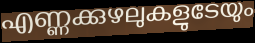
എണ്ണക്കുഴലുകളുടേയും